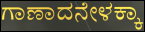
ಗಾಣಾದನೇಳಕ್ಕಾ